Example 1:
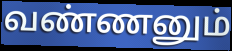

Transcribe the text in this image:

வண்ணனும்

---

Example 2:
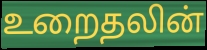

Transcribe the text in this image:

உறைதலின்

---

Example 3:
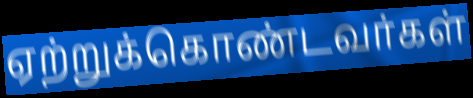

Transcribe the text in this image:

ஏற்றுக்கொண்டவர்கள்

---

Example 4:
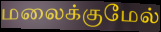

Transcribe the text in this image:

மலைக்குமேல்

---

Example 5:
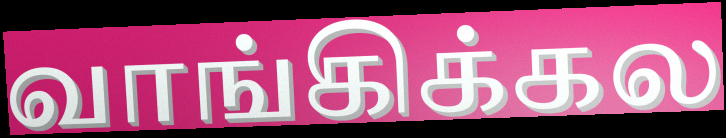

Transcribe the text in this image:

வாங்கிக்கல